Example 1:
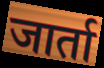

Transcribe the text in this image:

जार्ता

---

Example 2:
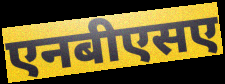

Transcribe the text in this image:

एनबीएसए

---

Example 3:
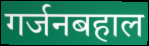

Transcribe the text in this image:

गर्जनबहाल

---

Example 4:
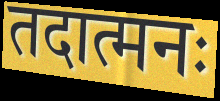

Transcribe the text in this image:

तदात्मनः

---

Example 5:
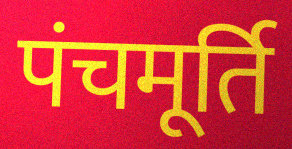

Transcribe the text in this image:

पंचमूर्ति